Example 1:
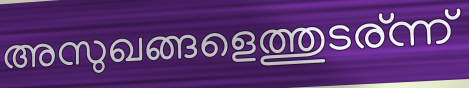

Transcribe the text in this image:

അസുഖങ്ങളെത്തുടര്ന്ന്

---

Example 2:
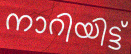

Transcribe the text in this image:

നാറിയിട്ട്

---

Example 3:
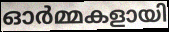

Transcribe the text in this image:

ഓർമ്മകളായി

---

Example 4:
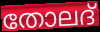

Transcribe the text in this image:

തോലദ്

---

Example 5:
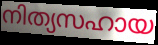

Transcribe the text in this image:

നിത്യസഹായ